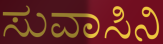
ಸುವಾಸಿನಿ